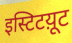
इस्टिटय़ूट